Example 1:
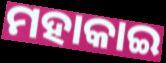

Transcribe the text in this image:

ମହାକାଇ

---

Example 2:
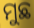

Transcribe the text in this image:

ମୁଛ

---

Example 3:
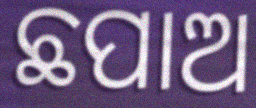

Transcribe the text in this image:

ଛପାଅ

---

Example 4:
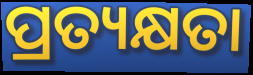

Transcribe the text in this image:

ପ୍ରତ୍ୟକ୍ଷତା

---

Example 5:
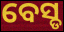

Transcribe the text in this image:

ବେସ୍ଡ